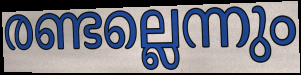
രണ്ടല്ലെന്നും